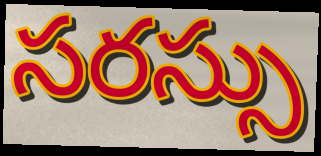
సరస్సు